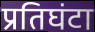
प्रतिघंटा